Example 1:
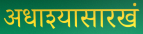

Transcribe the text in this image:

अधाश्यासारखं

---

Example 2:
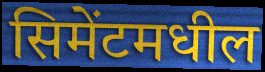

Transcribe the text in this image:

सिमेंटमधील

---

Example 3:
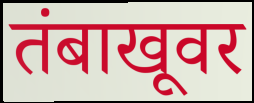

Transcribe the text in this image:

तंबाखूवर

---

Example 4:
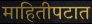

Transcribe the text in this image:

माहितीपटात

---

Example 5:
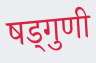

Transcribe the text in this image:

षड्गुणी